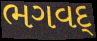
ભગવદ્